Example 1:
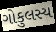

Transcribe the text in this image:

ગોકુલસ્ય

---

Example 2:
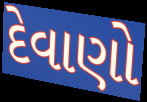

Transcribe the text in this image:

દેવાણો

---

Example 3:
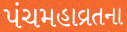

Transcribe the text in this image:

પંચમહાવ્રતના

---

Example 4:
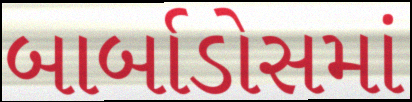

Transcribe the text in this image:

બાર્બાડોસમાં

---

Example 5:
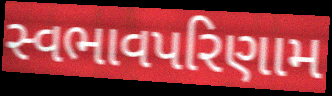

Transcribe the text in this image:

સ્વભાવપરિણામ